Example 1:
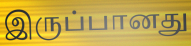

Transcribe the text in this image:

இருப்பானது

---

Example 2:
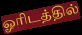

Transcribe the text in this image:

ஓரிடத்தில்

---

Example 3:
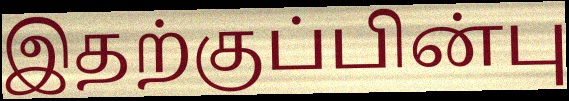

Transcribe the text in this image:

இதற்குப்பின்பு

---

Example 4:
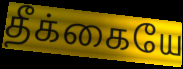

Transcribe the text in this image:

தீக்கையே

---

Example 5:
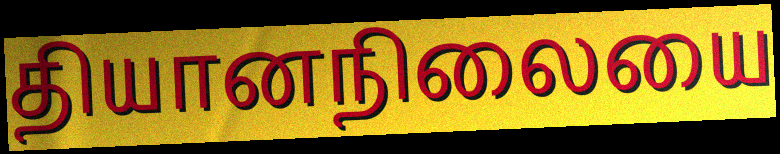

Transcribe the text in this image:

தியானநிலையை